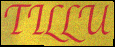
TILLU